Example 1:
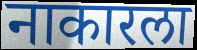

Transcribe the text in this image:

नाकारला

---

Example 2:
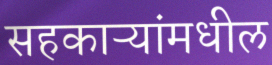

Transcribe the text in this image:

सहकाऱ्यांमधील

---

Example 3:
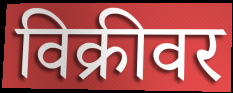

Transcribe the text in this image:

विक्रीवर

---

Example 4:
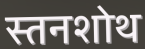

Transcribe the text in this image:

स्तनशोथ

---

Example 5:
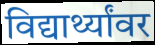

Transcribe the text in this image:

विद्यार्थ्यांवर